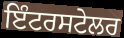
ਇੰਟਰਸਟੇਲਰ